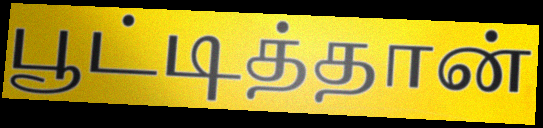
பூட்டித்தான்